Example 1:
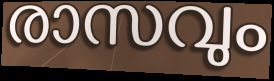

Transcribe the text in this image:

രാസവും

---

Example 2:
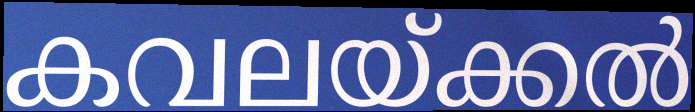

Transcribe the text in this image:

കവലയ്ക്കൽ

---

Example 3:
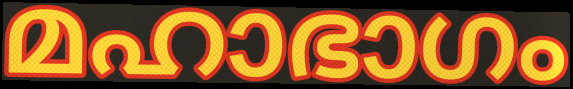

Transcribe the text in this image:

മഹാഭാഗം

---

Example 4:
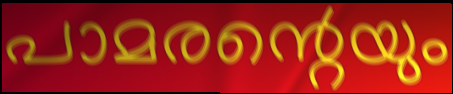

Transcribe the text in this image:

പാമരന്റെയും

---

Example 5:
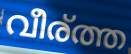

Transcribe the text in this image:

വീര്ത്ത